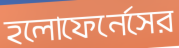
হলোফের্নেসের